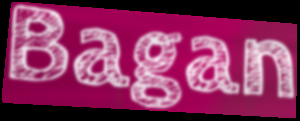
Bagan